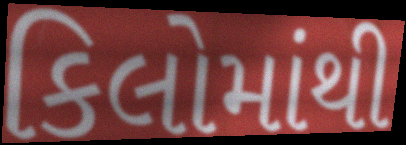
કિલોમાંથી